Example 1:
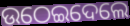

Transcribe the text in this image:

ଉଠେଇଦେଲେ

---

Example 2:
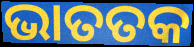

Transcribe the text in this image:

ଭାତତକ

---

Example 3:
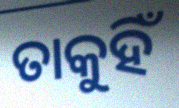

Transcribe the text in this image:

ତାକୁହିଁ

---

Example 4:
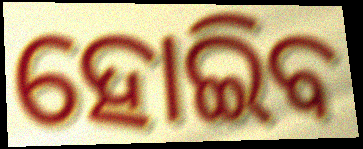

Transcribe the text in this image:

ହୋଇିବ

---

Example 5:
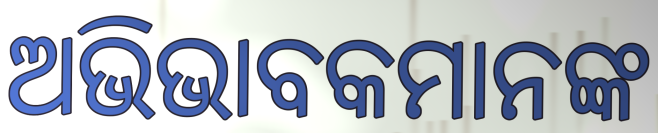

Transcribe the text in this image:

ଅଭିଭାବକମାନଙ୍କ